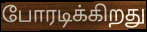
போரடிக்கிறது